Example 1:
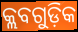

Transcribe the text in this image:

କ୍ଲବଗୁଡ଼ିକ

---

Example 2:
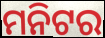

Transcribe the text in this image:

ମନିଟର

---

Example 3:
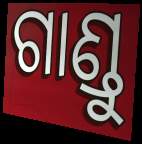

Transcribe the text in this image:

ଗାଣ୍ଡୁ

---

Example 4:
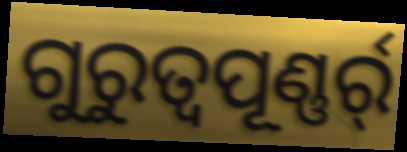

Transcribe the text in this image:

ଗୁରୁତ୍ୱପୂଣ୍ଣର୍ର୍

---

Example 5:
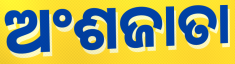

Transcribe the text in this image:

ଅଂଶଜାତା